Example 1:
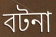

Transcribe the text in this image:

বটনা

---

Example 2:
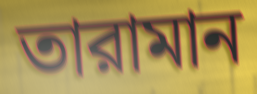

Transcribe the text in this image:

তারামান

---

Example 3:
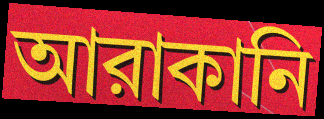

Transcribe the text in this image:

আরাকানি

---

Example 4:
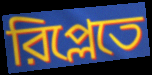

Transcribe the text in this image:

রিপ্লেতে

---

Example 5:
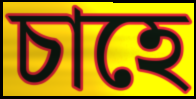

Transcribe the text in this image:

চাহে